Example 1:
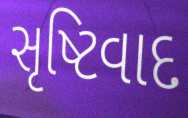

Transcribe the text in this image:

સૃષ્ટિવાદ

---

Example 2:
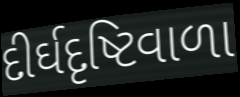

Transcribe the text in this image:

દીર્ઘદૃષ્ટિવાળા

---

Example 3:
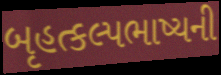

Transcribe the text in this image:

બૃહત્કલ્પભાષ્યની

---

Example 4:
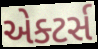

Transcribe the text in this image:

એક્ટર્સ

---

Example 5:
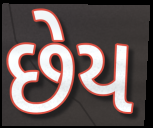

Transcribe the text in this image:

છેય